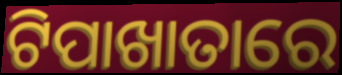
ଟିପାଖାତାରେ